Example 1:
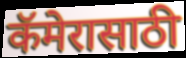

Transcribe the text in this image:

कॅमेरासाठी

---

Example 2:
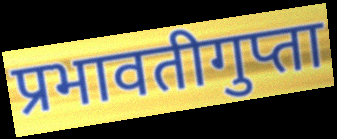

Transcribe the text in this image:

प्रभावतीगुप्ता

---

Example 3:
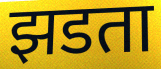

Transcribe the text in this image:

झडता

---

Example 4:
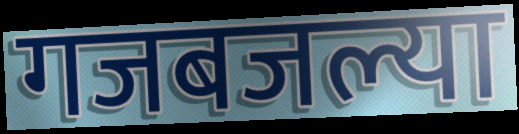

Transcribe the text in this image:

गजबजल्या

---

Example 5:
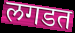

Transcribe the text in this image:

लगडत